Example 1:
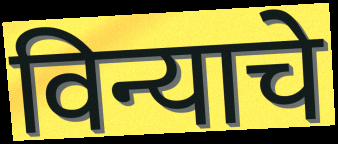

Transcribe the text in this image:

विन्याचे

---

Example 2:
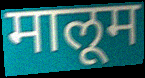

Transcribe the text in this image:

मालूम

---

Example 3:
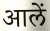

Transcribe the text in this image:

आलें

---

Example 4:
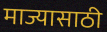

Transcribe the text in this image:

माज्यासाठी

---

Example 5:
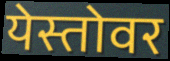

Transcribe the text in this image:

येस्तोवर